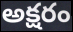
అక్షరం